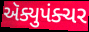
ઍક્યુપંક્ચર